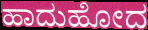
ಹಾದುಹೋದ